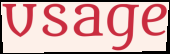
usage